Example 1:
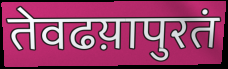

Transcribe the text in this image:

तेवढय़ापुरतं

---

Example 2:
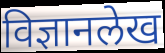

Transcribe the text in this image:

विज्ञानलेख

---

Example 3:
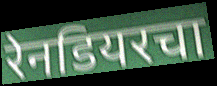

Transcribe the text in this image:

रेनडियरचा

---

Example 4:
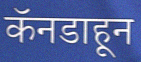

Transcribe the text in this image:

कॅनडाहून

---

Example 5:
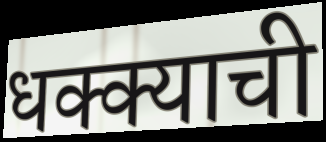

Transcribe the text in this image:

धक्क्याची